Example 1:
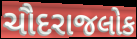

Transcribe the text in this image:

ચૌદરાજલોક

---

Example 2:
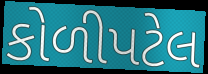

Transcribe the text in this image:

કોળીપટેલ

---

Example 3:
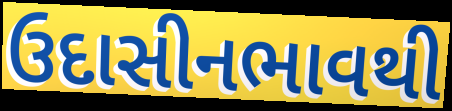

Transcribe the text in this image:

ઉદાસીનભાવથી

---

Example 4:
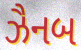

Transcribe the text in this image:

ઝૈનબ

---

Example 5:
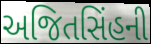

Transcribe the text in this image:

અજિતસિંહની